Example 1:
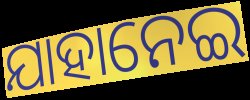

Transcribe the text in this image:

ଯାହାନେଇ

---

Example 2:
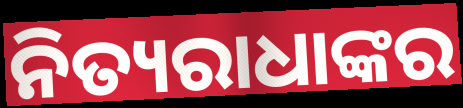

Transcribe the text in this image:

ନିତ୍ୟରାଧାଙ୍କର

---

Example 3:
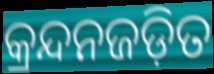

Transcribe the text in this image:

କ୍ରନ୍ଦନଜଡ଼ିତ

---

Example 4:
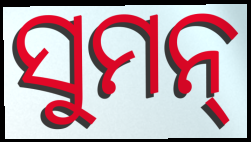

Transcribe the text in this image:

ସୁମନ୍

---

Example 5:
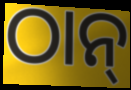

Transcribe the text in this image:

ଠାନ୍